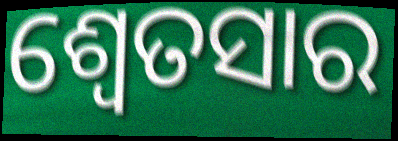
ଶ୍ଵେତସାର